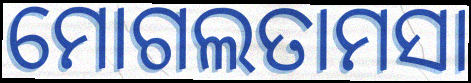
ମୋଗଲତାମସା